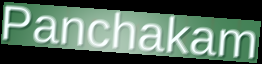
Panchakam